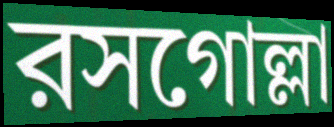
রসগোল্লা